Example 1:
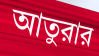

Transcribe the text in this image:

আতুরার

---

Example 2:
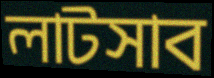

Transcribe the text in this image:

লাটসাব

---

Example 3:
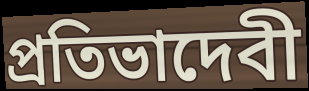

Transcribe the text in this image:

প্রতিভাদেবী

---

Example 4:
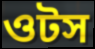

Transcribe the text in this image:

ওটস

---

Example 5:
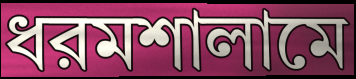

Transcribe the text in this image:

ধরমশালামে